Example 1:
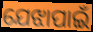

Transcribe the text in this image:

ଯେଝାପାଇଁ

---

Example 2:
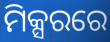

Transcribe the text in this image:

ମିକ୍ସରରେ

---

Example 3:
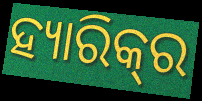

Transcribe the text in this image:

ହ୍ୟାରିକ୍‌ର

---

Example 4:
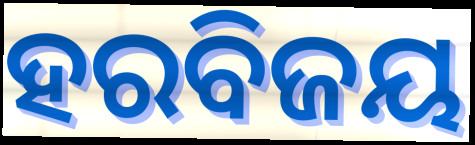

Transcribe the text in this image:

ହରବିଜୟ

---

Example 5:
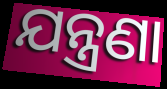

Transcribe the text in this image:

ଯନ୍ତ୍ରଣା